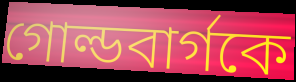
গোল্ডবার্গকে